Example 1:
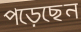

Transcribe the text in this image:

পড়েছেন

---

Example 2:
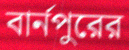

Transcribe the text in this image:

বার্নপুরের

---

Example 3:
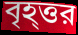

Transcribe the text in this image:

বৃহ্ত্তর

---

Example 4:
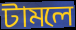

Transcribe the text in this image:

টামলে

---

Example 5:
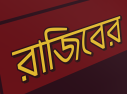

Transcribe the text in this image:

রাজিবের